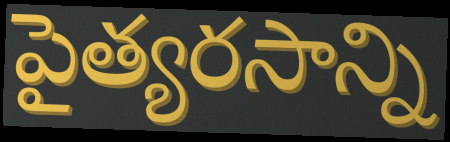
పైత్యరసాన్ని